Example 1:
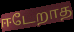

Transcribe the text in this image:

ஈடேறாத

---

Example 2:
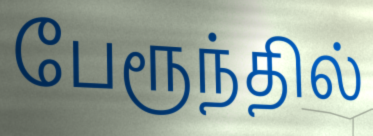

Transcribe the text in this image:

பேரூந்தில்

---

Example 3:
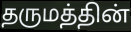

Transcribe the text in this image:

தருமத்தின்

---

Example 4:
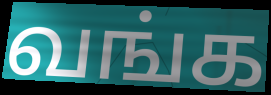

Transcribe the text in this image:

வங்க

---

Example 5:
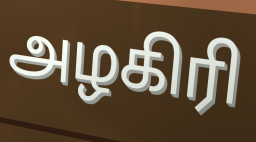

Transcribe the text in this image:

அழகிரி